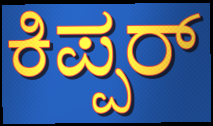
ಕಿಪ್ಪರ್